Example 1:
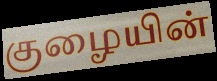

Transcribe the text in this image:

குழையின்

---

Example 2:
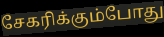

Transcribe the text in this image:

சேகரிக்கும்போது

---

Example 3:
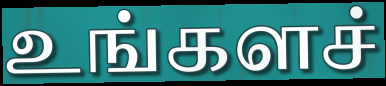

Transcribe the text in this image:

உங்களச்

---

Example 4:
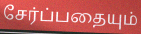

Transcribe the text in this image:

சேர்ப்பதையும்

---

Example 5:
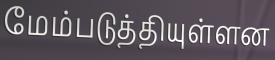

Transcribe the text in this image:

மேம்படுத்தியுள்ளன